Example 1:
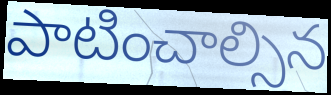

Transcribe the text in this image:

పాటించాల్సిన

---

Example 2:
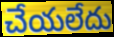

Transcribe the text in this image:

చేయలేదు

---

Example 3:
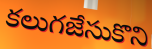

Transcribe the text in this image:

కలుగజేసుకొని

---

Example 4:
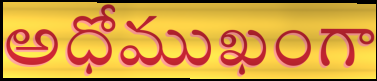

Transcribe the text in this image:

అధోముఖంగా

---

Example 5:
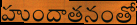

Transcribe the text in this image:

హుందాతనంతో